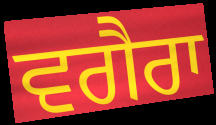
ਵਗੈਰਾ